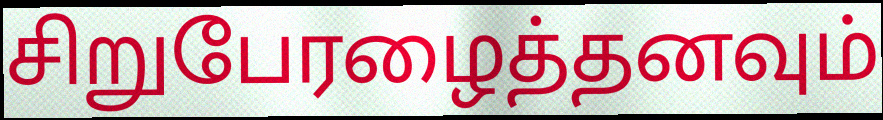
சிறுபேரழைத்தனவும்